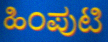
ಹಿಂಪುಟಿ